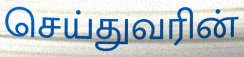
செய்துவரின்